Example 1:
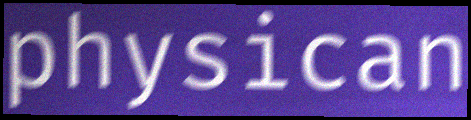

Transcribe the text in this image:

physican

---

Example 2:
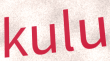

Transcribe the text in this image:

kulu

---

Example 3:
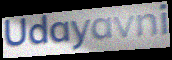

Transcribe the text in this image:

Udayavni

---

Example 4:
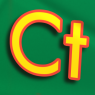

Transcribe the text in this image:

Ct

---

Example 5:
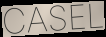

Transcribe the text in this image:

CASEL